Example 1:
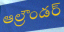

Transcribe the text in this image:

ఆల్రౌండర్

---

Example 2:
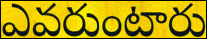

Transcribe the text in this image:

ఎవరుంటారు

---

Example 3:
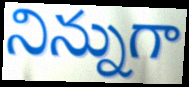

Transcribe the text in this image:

నిన్నుగా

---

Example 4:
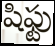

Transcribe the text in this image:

షిఫ్టు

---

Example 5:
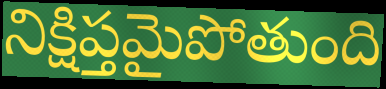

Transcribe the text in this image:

నిక్షిప్తమైపోతుంది